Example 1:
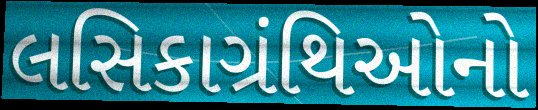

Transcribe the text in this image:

લસિકાગ્રંથિઓનો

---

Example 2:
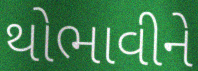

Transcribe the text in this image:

થોભાવીને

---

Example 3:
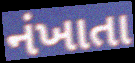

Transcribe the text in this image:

નંખાતા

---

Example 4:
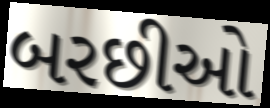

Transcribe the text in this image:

બરછીઓ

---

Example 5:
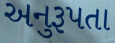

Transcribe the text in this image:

અનુરૂપતા